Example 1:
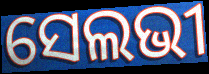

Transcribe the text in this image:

ସେଲଭୀ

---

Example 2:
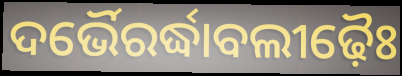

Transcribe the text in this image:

ଦର୍ଭୈରର୍ଦ୍ଧାବଲୀଢ଼ୈଃ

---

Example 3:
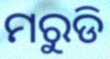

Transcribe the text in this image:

ମରୁଡି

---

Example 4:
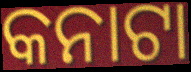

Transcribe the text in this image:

କନାଟା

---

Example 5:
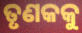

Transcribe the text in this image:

ତୃଣକକୁ